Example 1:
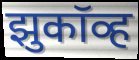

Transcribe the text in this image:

झुकॉव्ह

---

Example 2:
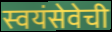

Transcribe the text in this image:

स्वयंसेवेची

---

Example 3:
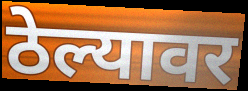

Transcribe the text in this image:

ठेल्यावर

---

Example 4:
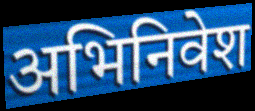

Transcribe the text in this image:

अभिनिवेश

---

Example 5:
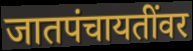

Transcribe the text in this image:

जातपंचायतींवर